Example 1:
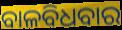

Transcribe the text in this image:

ବାଳବିଧବାର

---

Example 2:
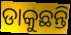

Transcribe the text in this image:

ଡାକୁଛନ୍ତି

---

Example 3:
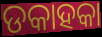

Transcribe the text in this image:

ଡକାହକା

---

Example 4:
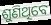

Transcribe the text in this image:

ଶୁଣିଥିବେ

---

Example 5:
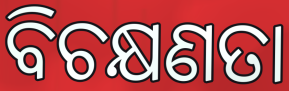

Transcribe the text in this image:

ବିଚକ୍ଷଣତା